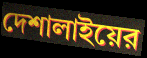
দেশালাইয়ের